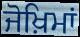
ਜੋਖ਼ਿਮਾਂ